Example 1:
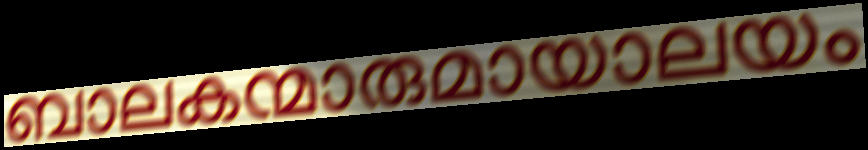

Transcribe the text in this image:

ബാലകന്മാരുമായാലയം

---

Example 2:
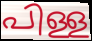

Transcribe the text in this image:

പിള്ള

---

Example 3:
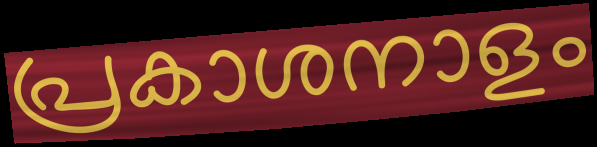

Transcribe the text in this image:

പ്രകാശനാളം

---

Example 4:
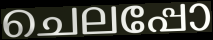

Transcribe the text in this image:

ചെലപ്പോ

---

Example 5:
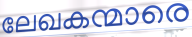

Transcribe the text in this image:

ലേഖകന്മാരെ